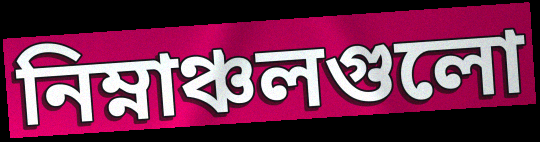
নিম্নাঞ্চলগুলো